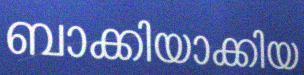
ബാക്കിയാക്കിയ